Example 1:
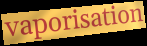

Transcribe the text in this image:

vaporisation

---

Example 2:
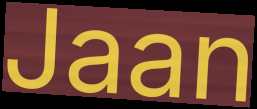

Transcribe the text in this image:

Jaan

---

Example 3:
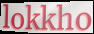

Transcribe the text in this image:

lokkho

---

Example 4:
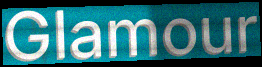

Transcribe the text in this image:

Glamour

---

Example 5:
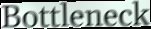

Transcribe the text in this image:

Bottleneck